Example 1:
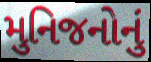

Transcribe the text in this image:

મુનિજનોનું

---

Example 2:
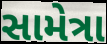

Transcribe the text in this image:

સામેત્રા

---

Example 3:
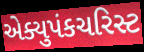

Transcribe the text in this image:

એક્યુપંકચરિસ્ટ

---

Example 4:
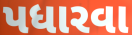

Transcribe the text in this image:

પધારવા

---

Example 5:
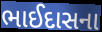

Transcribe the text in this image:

ભાઈદાસના